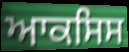
ਆਕਸਿਸ